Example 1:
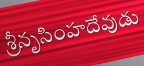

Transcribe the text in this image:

శ్రీనృసింహదేవుడు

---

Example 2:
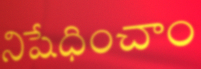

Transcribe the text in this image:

నిషేధించాం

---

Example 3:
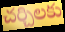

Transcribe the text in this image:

చర్చిలకు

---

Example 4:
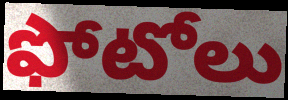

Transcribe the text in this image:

ఫోటోలు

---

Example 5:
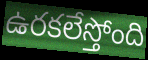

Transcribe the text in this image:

ఉరకలేస్తోంది